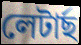
লেটাৰ্ছ